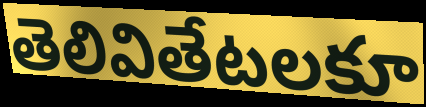
తెలివితేటలకూ